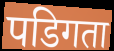
पडिगता